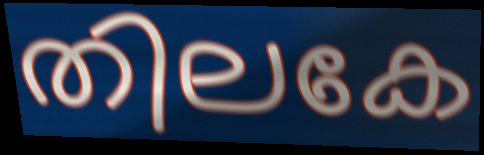
തിലകേ